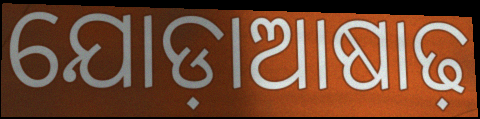
ଯୋଡ଼ାଆଷାଢ଼